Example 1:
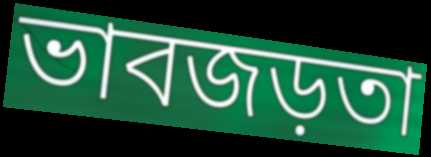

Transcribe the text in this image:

ভাবজড়তা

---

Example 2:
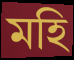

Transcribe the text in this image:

মহি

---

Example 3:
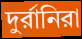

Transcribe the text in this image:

দুর্রানিরা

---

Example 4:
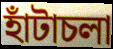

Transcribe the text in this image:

হাঁটাচলা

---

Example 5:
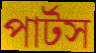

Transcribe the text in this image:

পার্টস